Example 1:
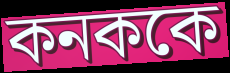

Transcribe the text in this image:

কনককে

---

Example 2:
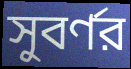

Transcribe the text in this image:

সুবর্ণর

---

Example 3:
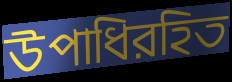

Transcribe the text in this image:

উপাধিরহিত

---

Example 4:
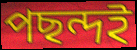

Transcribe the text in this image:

পছন্দই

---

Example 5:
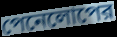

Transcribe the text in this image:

পেনেলোপের